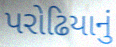
પરોઢિયાનું